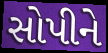
સોપીને